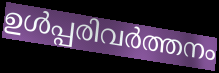
ഉൾപ്പരിവർത്തനം